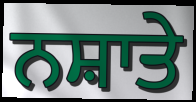
ਨਸ਼ਾਤੇ